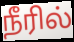
நீரில்